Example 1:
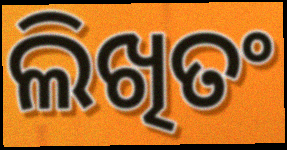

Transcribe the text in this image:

ଲିଖିତଂ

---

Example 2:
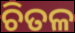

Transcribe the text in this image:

ଚିତଳ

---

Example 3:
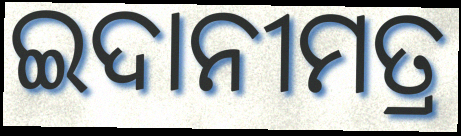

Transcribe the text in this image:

ଇଦାନୀମତ୍ର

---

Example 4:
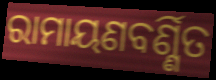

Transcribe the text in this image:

ରାମାୟଣବର୍ଣ୍ଣିତ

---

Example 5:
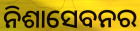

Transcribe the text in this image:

ନିଶାସେବନର